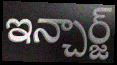
ఇన్చార్జ్